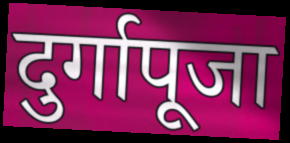
दुर्गापूजा